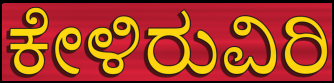
ಕೇಳಿರುವಿರಿ